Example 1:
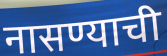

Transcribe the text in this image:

नासण्याची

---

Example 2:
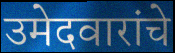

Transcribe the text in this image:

उमेदवारांचे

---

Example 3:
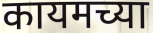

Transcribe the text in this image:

कायमच्या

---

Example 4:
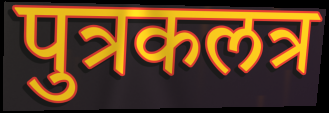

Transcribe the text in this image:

पुत्रकलत्र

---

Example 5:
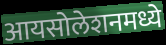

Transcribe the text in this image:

आयसोलेशनमध्ये